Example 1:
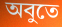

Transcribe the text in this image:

অবুতে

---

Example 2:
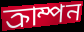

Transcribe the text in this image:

ক্রাম্পন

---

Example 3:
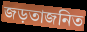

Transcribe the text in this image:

জড়তাজনিত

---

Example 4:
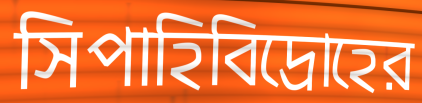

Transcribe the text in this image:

সিপাহিবিদ্রোহের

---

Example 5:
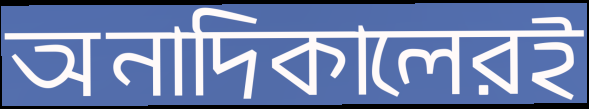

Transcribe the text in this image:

অনাদিকালেরই